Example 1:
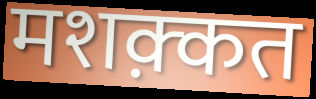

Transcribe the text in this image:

मशक़्कत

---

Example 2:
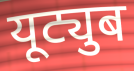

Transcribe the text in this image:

यूट्युब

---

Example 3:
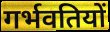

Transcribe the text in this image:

गर्भवतियों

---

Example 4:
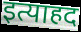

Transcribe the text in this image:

इत्याहद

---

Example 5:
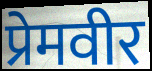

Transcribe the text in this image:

प्रेमवीर